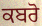
ਕਬਰੋ